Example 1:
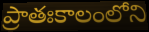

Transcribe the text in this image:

ప్రాతఃకాలంలోని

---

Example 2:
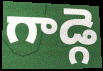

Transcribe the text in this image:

గాడ్గె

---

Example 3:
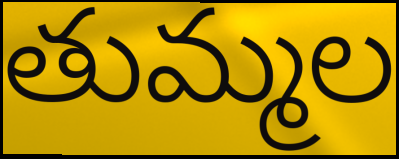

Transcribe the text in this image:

తుమ్మల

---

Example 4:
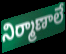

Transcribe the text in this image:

నిర్మాణాలే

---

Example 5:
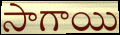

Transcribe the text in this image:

సాగాయి